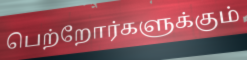
பெற்றோர்களுக்கும்